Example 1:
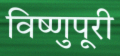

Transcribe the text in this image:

विष्णुपूरी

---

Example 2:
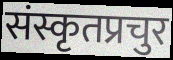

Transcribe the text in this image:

संस्कृतप्रचुर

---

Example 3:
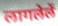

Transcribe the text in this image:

लागलेलें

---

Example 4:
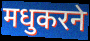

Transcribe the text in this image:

मधुकरने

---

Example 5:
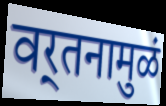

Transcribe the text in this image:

वर्तनामुळं